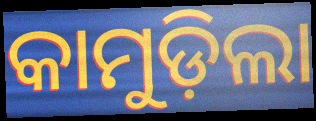
କାମୁଡ଼ିଲା